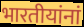
भारतीयांनां